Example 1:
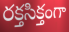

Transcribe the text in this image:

రక్తసిక్తంగా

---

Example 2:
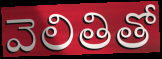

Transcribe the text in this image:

వెలితితో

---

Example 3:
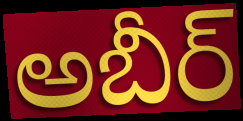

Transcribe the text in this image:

అబీర్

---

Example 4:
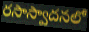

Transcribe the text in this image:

రసాస్వాదనలో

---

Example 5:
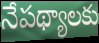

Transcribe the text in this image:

నేపథ్యాలకు